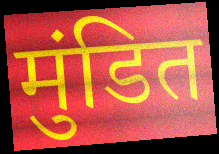
मुंडित